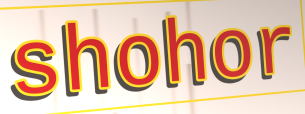
shohor